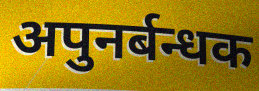
अपुनर्बन्धक